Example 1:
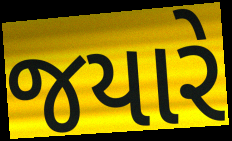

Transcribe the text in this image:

જયારે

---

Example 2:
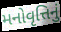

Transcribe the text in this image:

મનોવૃત્તિનું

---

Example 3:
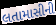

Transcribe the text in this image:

લતામાસીની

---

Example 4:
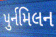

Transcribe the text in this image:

પુર્નમિલન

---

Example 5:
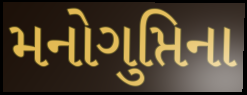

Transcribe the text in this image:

મનોગુપ્તિના